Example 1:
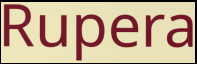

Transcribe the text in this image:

Rupera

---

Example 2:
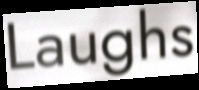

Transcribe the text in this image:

Laughs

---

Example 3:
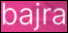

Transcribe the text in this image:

bajra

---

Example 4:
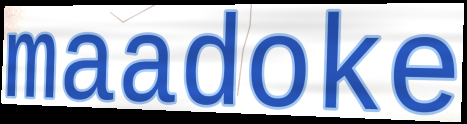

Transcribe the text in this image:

maadoke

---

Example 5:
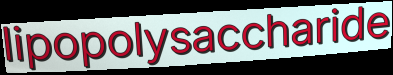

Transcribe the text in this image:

lipopolysaccharide